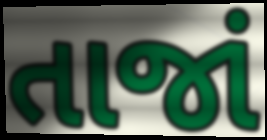
તાજાં